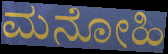
ಮನೋಹಿ